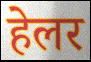
हेलर